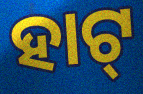
ହାଟ୍